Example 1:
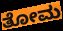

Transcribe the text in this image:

ತೋಮ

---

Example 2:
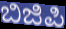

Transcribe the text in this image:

ಬಿಜಿಪಿ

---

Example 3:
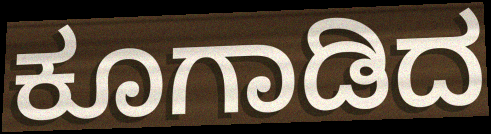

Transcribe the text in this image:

ಕೂಗಾಡಿದ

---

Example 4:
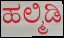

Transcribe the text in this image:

ಹಲ್ಮಿಡಿ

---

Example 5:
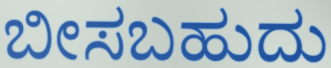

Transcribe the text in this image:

ಬೀಸಬಹುದು